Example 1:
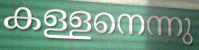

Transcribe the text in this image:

കള്ളനെന്നു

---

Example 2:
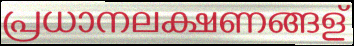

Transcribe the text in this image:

പ്രധാനലക്ഷണങ്ങള്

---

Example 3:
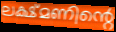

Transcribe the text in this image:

ലക്ഷ്മണിന്റെ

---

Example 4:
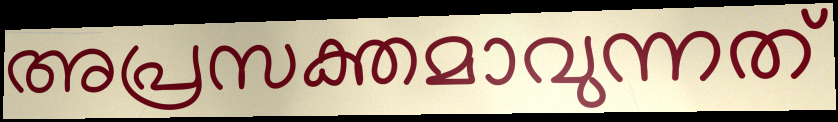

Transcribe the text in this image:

അപ്രസക്തമാവുന്നത്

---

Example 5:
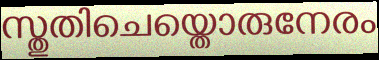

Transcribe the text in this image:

സ്തുതിചെയ്തൊരുനേരം